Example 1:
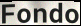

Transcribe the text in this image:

Fondo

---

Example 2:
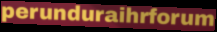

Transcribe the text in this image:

perunduraihrforum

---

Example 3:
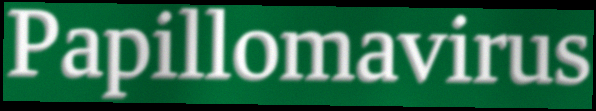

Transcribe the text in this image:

Papillomavirus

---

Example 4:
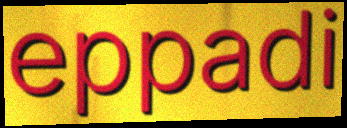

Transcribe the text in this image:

eppadi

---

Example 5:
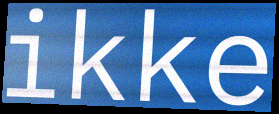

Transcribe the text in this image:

ikke